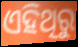
ଏହିଥିରୁ